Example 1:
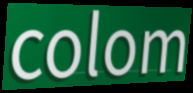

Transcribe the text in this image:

colom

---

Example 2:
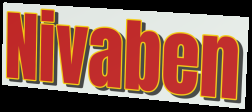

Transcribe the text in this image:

Nivaben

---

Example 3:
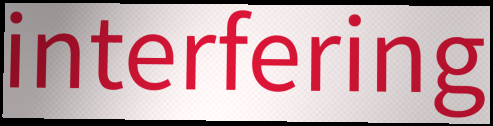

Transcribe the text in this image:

interfering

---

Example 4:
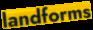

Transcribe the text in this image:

landforms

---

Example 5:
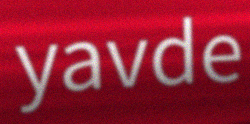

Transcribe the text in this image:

yavde